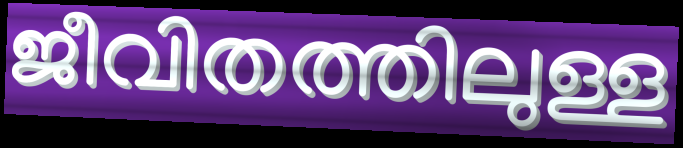
ജീവിതത്തിലുള്ള